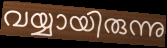
വയ്യായിരുന്നു